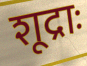
शूद्राः